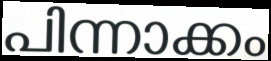
പിന്നാക്കം